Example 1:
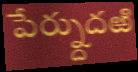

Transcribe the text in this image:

పేర్న్దుదఱి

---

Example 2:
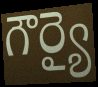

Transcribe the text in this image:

గౌర్యై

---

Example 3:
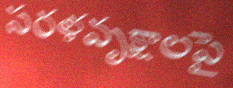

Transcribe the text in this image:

సరళవృక్షాలపై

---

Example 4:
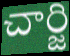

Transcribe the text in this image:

చార్జి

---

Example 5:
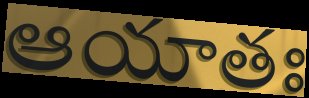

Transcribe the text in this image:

ఆయాతః